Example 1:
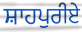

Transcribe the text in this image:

ਸ਼ਾਹਪੁਰੀਏ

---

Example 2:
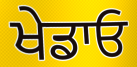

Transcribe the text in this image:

ਖੇਡਾਓ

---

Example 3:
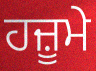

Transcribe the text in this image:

ਹਜ਼ੂਮੇ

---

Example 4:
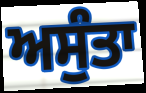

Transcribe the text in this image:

ਅਸੁੰਤਾ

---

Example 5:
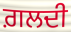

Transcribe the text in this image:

ਗ਼ਲਦੀ